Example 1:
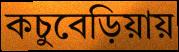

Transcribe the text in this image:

কচুবেড়িয়ায়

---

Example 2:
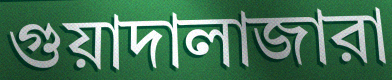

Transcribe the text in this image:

গুয়াদালাজারা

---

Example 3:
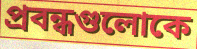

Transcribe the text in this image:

প্রবন্ধগুলোকে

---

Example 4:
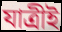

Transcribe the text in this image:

যাত্রীই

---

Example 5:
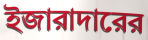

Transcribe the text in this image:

ইজারাদারের